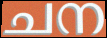
ചന